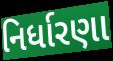
નિર્ધારણા